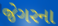
જેગરના